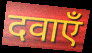
दवाएँ